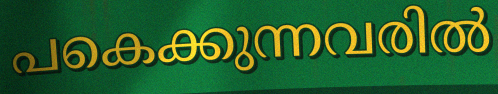
പകെക്കുന്നവരിൽ